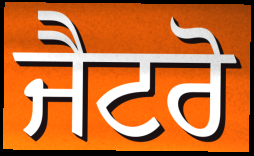
ਜੈਟਰੋ